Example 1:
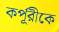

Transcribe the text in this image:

কর্পূরীকে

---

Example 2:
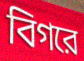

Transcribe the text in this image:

বিগরে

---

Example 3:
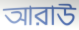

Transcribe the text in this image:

আরাউ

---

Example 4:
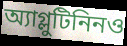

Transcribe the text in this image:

অ্যাগ্লুটিনিনও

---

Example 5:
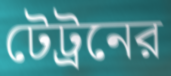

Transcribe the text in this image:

টেট্রনের